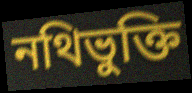
নথিভুক্তি